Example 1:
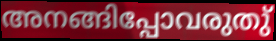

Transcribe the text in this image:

അനങ്ങിപ്പോവരുതു്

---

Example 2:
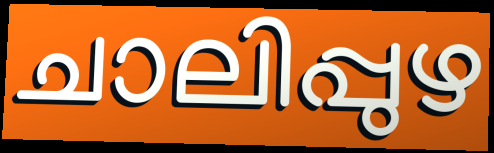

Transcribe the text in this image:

ചാലിപ്പുഴ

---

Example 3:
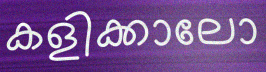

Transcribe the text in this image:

കളിക്കാലോ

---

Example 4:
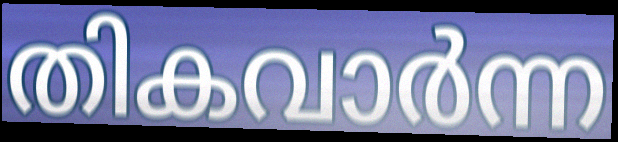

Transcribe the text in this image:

തികവാർന്ന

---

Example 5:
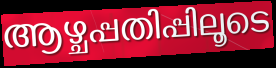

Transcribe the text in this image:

ആഴ്ചപ്പതിപ്പിലൂടെ